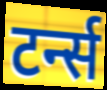
टर्न्स